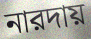
নারদায়